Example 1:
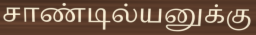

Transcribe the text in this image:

சாண்டில்யனுக்கு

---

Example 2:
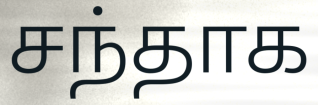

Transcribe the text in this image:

சந்தாக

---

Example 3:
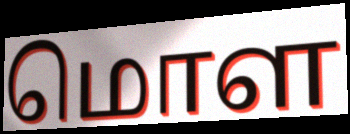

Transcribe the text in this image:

மொள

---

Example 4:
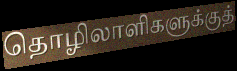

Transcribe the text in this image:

தொழிலாளிகளுக்குத்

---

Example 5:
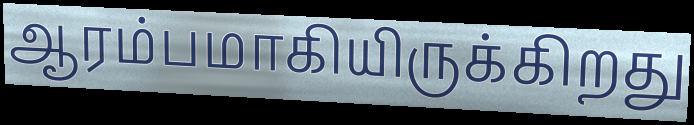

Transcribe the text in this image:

ஆரம்பமாகியிருக்கிறது